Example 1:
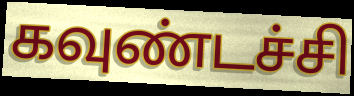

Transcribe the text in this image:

கவுண்டச்சி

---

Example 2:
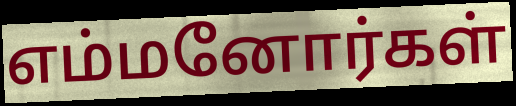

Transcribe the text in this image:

எம்மனோர்கள்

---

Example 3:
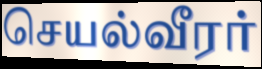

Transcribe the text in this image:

செயல்வீரர்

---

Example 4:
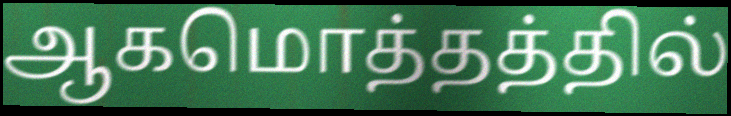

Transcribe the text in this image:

ஆகமொத்தத்தில்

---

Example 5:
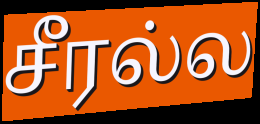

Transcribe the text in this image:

சீரல்ல